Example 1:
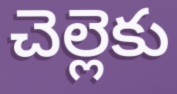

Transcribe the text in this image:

చెల్లెకు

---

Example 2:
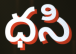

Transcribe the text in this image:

ధసి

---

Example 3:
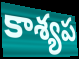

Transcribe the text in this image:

కాశ్యప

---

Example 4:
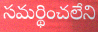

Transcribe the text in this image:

సమర్థించలేని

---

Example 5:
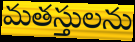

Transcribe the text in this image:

మతస్తులను